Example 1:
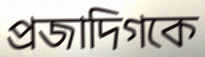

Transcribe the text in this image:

প্রজাদিগকে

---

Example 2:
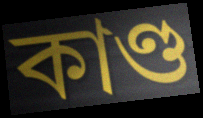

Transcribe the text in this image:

কাণ্ড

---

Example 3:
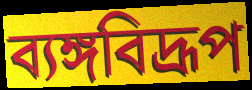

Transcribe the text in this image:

ব্যঙ্গবিদ্রূপ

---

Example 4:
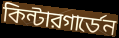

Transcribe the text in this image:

কিন্টারগার্ডেন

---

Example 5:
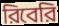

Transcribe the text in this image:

রিবেরি